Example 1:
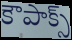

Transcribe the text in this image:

కౌపాక్స్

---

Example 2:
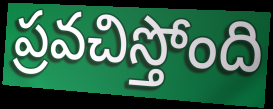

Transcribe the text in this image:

ప్రవచిస్తోంది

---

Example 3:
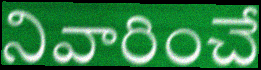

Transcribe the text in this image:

నివారించే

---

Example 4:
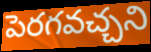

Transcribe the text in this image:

పెరగవచ్చని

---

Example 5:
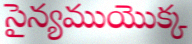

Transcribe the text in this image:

సైన్యముయొక్క